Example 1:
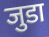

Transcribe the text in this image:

जुडा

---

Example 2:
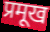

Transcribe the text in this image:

प्रमूख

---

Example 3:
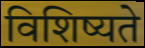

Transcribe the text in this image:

विशिष्यते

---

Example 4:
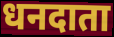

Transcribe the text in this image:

धनदाता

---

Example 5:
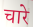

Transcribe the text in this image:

चारे